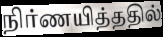
நிர்ணயித்ததில்